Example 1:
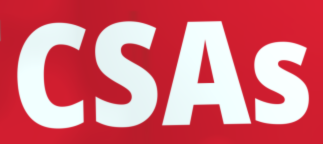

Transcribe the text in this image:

CSAs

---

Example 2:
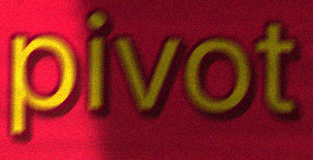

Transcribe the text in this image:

pivot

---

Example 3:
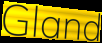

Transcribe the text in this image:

Gland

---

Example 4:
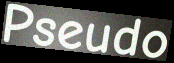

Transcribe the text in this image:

Pseudo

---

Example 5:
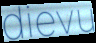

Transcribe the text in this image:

dievu